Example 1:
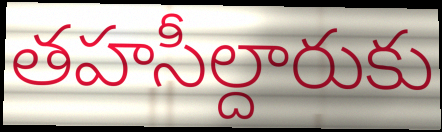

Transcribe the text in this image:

తహసీల్దారుకు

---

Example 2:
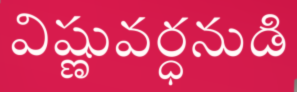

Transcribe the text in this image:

విష్ణువర్ధనుడి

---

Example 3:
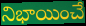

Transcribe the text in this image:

నిభాయించే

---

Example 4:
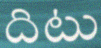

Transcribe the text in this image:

దిటు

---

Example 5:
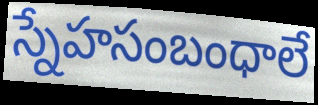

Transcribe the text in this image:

స్నేహసంబంధాలే